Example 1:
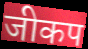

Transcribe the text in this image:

जीकप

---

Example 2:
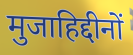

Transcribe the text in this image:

मुजाहिद्दीनों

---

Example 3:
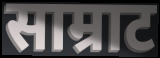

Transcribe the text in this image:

साम्राट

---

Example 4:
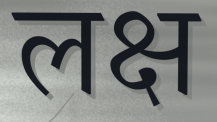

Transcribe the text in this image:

लक्ष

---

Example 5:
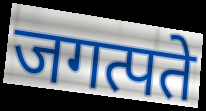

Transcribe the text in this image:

जगत्पते